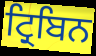
ਟ੍ਰਿਬਿਨ